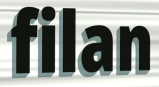
filan